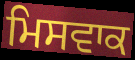
ਮਿਸਵਾਕ